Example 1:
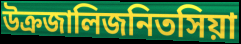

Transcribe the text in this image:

উক্রজালিজনিতসিয়া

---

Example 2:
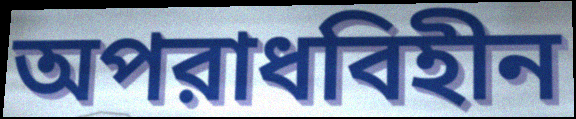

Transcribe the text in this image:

অপরাধবিহীন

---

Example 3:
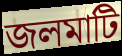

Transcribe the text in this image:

জলমাটি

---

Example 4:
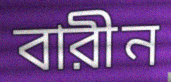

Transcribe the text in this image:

বারীন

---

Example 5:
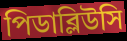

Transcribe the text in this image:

পিডাব্লিউসি